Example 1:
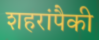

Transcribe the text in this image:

शहरांपैकी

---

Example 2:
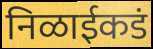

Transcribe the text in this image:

निळाईकडं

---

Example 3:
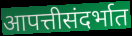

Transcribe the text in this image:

आपत्तीसंदर्भात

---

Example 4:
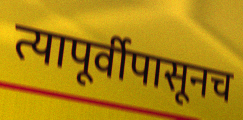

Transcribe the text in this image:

त्यापूर्वीपासूनच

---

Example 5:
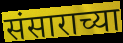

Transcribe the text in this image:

संसाराच्या